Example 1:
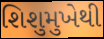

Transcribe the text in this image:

શિશુમુખેથી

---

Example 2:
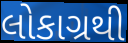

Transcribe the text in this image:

લોકાગ્રથી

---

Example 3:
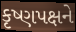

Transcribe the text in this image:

કૃષ્ણપક્ષને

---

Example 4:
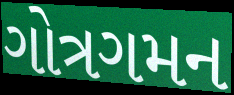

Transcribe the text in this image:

ગોત્રગમન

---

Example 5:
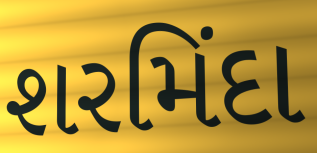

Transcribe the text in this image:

શરમિંદા